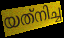
യത്‌നിച്ച